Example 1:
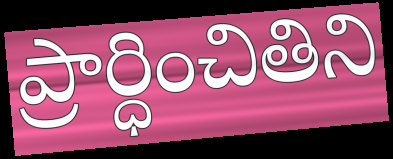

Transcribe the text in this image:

ప్రార్ధించితిని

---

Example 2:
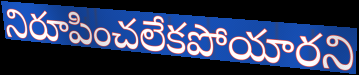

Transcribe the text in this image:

నిరూపించలేకపోయారని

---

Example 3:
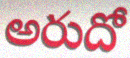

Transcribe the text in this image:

అరుదో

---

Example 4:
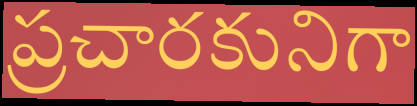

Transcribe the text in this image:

ప్రచారకునిగా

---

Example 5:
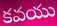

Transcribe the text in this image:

కవయు